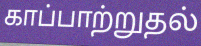
காப்பாற்றுதல்